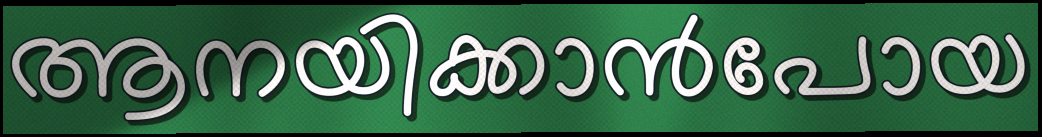
ആനയിക്കാൻപോയ